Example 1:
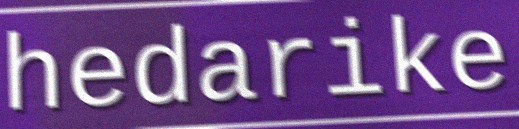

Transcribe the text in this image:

hedarike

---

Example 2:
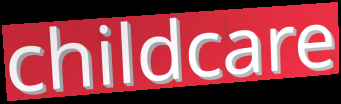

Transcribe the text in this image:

childcare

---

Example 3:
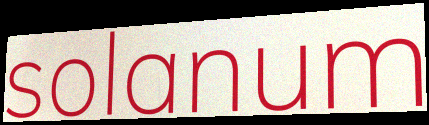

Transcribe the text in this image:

solanum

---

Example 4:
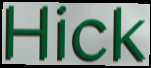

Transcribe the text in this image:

Hick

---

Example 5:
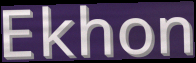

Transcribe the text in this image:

Ekhon